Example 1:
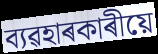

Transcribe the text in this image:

ব্যৱহাৰকাৰীয়ে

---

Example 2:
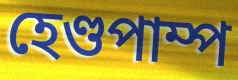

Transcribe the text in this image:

হেণ্ডপাম্প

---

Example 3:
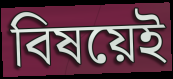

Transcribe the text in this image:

বিষয়েই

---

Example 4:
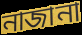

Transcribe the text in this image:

নাজানা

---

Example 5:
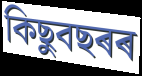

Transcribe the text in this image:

কিছুবছৰৰ